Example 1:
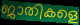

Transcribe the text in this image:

ജാതികളെ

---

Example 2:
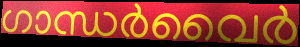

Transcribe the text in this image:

ഗാന്ധർവൈർ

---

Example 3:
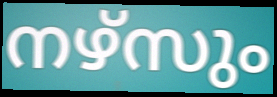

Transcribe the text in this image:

നഴ്സും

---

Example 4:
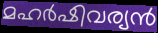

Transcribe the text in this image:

മഹർഷിവര്യൻ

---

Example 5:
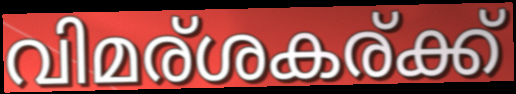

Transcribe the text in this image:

വിമര്ശകര്ക്ക്